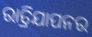
ରାତ୍ରିଯାପନର